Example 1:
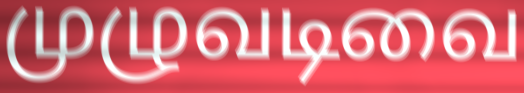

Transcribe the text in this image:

முழுவடிவை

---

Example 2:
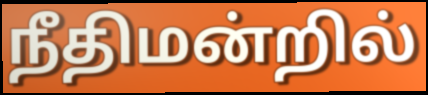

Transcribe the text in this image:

நீதிமன்றில்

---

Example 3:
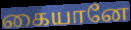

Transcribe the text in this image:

கையானே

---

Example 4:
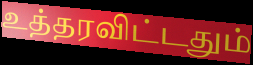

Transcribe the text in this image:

உத்தரவிட்டதும்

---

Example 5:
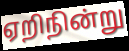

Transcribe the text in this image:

ஏறிநின்று